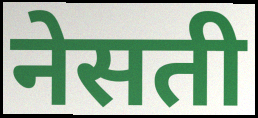
नेसती